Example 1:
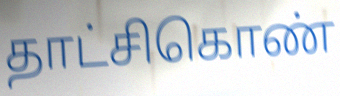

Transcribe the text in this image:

தாட்சிகொண்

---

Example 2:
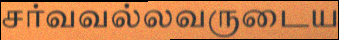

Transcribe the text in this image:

சர்வவல்லவருடைய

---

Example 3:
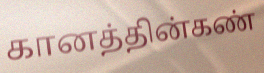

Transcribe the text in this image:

கானத்தின்கண்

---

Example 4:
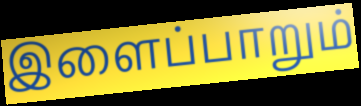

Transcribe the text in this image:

இளைப்பாறும்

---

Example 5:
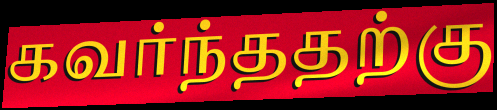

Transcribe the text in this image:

கவர்ந்ததற்கு